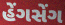
હેંગસેંગ